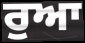
ਰੁਆ